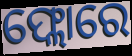
ଫ୍ଲୋରେ